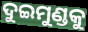
ଦୁଇମୁଣ୍ଡକୁ